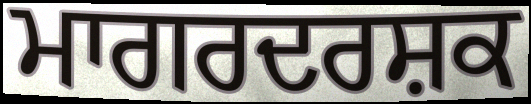
ਮਾਗਰਦਰਸ਼ਕ